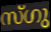
സ്ഗു